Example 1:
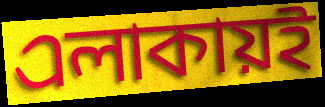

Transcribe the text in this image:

এলাকায়ই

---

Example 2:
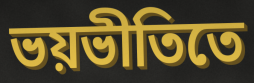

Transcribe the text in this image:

ভয়ভীতিতে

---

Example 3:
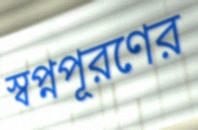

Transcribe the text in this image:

স্বপ্নপূরণের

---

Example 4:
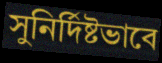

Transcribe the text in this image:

সুনির্দিষ্টভাবে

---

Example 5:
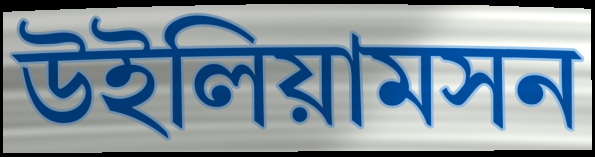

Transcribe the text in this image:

উইলিয়ামসন